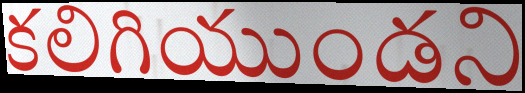
కలిగియుండని